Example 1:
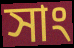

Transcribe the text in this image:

সাং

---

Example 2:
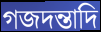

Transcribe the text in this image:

গজদন্তাদি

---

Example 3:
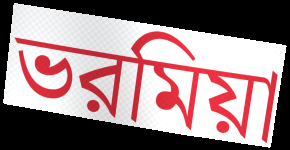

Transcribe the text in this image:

ভরমিয়া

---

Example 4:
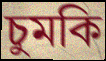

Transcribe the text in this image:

চুমকি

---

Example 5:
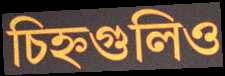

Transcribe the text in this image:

চিহ্নগুলিও